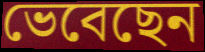
ভেবেছেন